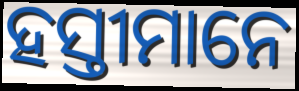
ହସ୍ତୀମାନେ